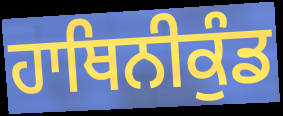
ਹਾਥਿਨੀਕੁੰਡ